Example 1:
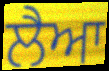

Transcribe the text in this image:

ਲੈਆ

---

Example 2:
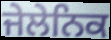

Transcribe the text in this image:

ਜੇਲੇਨਿਕ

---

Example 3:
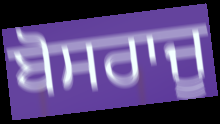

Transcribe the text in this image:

ਬੋਸਰਾਜੂ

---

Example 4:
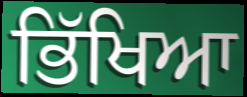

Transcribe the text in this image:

ਭਿੱਖਿਆ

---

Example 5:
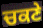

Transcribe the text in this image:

ਚਕਣੇ